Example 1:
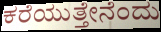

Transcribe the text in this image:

ಕರೆಯುತ್ತೇನೆಂದು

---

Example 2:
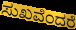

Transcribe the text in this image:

ಸುಖವೆಂದರೆ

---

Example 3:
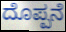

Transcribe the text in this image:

ದೊಪ್ಪನೆ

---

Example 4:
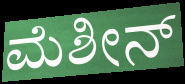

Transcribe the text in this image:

ಮೆಶೀನ್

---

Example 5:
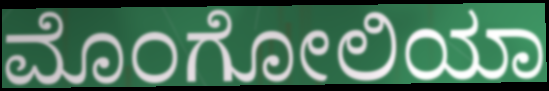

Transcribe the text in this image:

ಮೊಂಗೋಲಿಯಾ